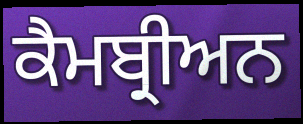
ਕੈਮਬ੍ਰੀਅਨ